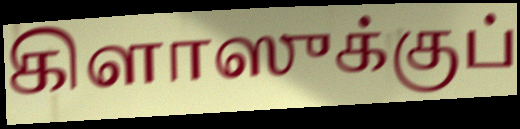
கிளாஸுக்குப்